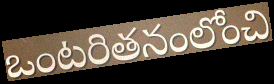
ఒంటరితనంలోంచి